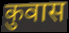
कुवास